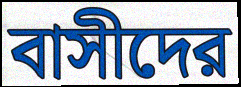
বাসীদের